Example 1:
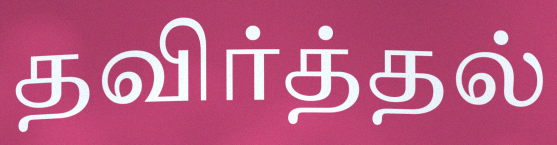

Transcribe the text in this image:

தவிர்த்தல்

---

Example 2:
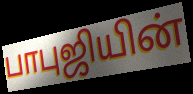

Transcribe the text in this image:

பாபுஜியின்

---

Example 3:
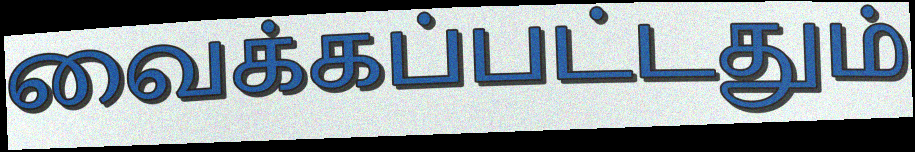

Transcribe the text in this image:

வைக்கப்பட்டதும்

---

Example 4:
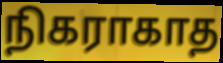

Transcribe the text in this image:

நிகராகாத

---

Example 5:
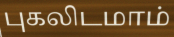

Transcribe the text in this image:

புகலிடமாம்